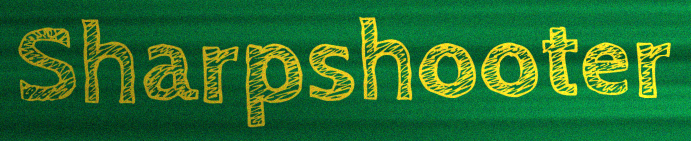
Sharpshooter